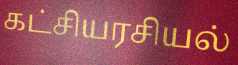
கட்சியரசியல்